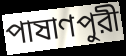
পাষাণপুরী